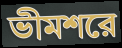
ভীমশরে